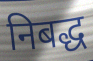
निबद्ध